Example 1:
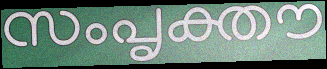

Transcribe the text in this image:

സംപൃക്തൗ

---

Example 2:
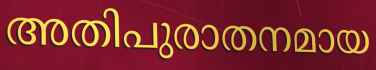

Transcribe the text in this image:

അതിപുരാതനമായ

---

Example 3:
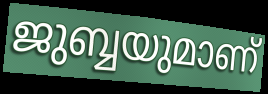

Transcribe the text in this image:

ജുബ്ബയുമാണ്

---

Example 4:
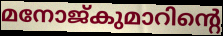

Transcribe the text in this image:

മനോജ്കുമാറിന്റെ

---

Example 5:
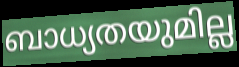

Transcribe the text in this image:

ബാധ്യതയുമില്ല